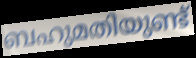
ബഹുമതിയുണ്ട്